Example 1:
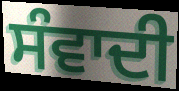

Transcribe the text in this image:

ਸੰਵਾਦੀ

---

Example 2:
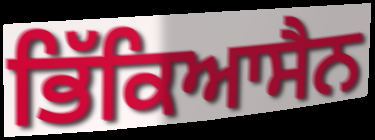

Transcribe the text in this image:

ਭਿੱਕਿਆਸੈਨ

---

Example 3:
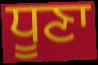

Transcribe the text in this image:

ਧੂਣਾ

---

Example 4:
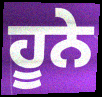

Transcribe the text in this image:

ਹੂਨੇ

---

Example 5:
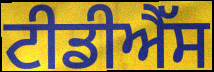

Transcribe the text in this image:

ਟੀਡੀਐੱਸ